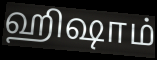
ஹிஷாம்